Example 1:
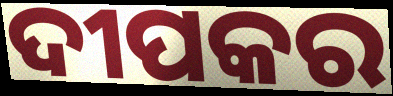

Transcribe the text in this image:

ଦୀପକର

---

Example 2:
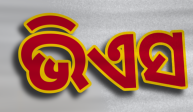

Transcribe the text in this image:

ଭିଏସ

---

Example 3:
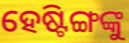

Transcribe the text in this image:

ହେଷ୍ଟିଙ୍ଗଙ୍କୁ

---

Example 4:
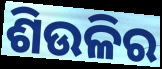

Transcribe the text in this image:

ଶିଉଳିର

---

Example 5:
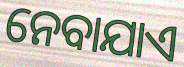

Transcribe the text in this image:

ନେବାଯାଏ